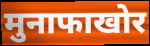
मुनाफाखोर